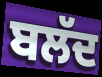
ਬਲੱਦ